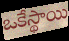
ఒకేస్థాయి